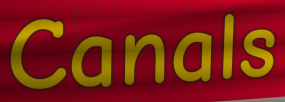
Canals